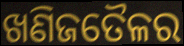
ଖଣିଜତୈଳର